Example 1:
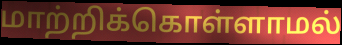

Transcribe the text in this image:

மாற்றிக்கொள்ளாமல்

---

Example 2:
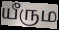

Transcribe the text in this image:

யீரும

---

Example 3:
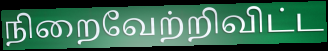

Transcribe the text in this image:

நிறைவேற்றிவிட்ட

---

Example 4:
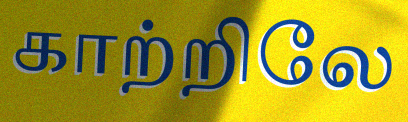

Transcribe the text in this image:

காற்றிலே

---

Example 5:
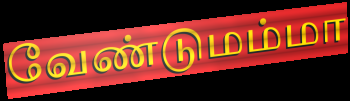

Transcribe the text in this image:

வேண்டுமம்மா